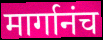
मार्गानंच